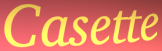
Casette